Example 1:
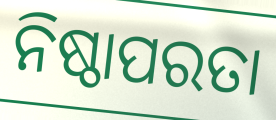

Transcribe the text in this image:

ନିଷ୍ଠାପରତା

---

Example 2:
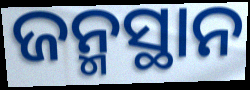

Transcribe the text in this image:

ଜନ୍ମସ୍ଥାନ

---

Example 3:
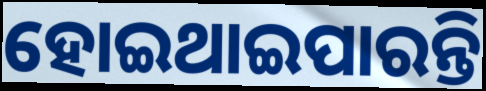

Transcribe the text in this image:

ହୋଇଥାଇପାରନ୍ତି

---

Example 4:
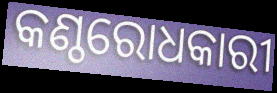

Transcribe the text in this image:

କଣ୍ଠରୋଧକାରୀ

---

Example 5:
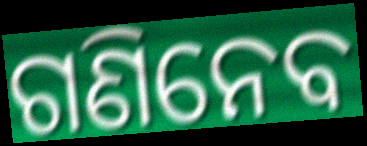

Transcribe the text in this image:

ଗଣିନେବ